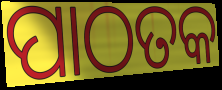
ପାଠତକ